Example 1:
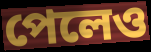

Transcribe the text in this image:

পেলেও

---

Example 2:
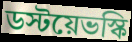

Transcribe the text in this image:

ডস্টয়েভস্কি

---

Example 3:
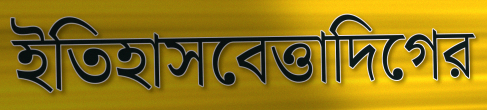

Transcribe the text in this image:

ইতিহাসবেত্তাদিগের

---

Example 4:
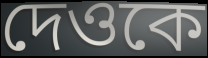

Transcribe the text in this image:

দেওকে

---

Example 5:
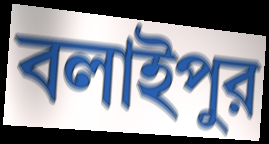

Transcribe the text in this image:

বলাইপুর